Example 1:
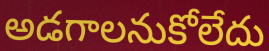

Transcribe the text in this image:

అడగాలనుకోలేదు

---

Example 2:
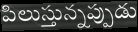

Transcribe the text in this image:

పిలుస్తున్నప్పుడు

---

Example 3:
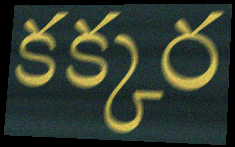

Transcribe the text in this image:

కక్కర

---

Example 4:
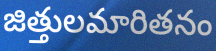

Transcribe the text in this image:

జిత్తులమారితనం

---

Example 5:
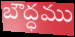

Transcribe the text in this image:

బౌద్ధము